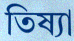
তিষ্যা